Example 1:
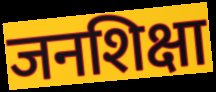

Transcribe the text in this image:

जनशिक्षा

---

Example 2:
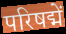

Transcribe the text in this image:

परिषद्में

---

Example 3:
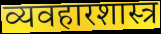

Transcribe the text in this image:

व्यवहारशास्त्र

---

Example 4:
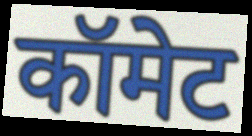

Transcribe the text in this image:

कॉमेट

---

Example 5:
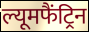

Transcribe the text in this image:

ल्यूमफैंट्रिन